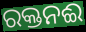
ରକ୍ତନଈ